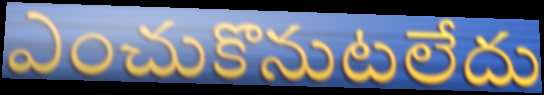
ఎంచుకొనుటలేదు